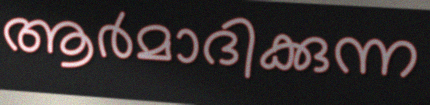
ആർമാദിക്കുന്ന